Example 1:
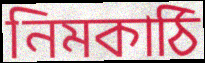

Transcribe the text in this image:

নিমকাঠি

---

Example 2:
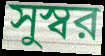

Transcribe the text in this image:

সুস্বর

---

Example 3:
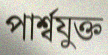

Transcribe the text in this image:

পার্শ্বযুক্ত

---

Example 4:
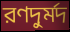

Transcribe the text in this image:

রণদুর্মদ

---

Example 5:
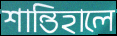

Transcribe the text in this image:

শান্তিহালে